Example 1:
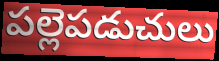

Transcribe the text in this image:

పల్లెపడుచులు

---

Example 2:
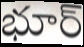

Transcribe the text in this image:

భూర్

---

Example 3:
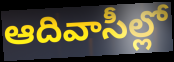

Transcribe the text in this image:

ఆదివాసీల్లో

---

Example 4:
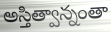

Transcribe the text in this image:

అస్తిత్వాన్నంతా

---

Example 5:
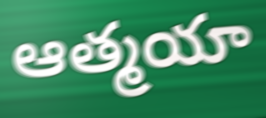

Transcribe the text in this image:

ఆత్మయా